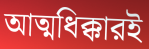
আত্মধিক্কারই